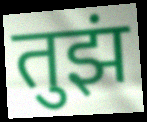
तुझं